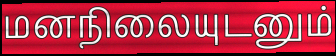
மனநிலையுடனும்